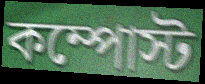
কম্পোস্ট